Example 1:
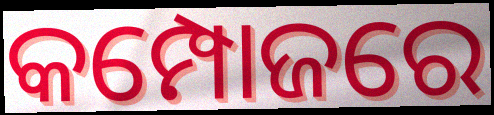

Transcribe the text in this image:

କମ୍ପୋଜରେ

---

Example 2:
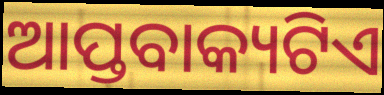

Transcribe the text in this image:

ଆପ୍ତବାକ୍ୟଟିଏ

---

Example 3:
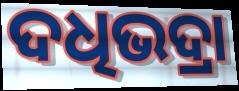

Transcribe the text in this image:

ଦଧିଭଦ୍ରା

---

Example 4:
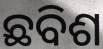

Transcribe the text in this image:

ଛବିଶ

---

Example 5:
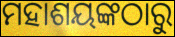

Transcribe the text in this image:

ମହାଶୟଙ୍କଠାରୁ